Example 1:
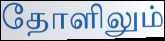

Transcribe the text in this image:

தோளிலும்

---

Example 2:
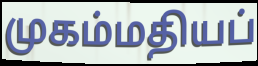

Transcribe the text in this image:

முகம்மதியப்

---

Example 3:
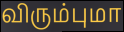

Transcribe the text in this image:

விரும்புமா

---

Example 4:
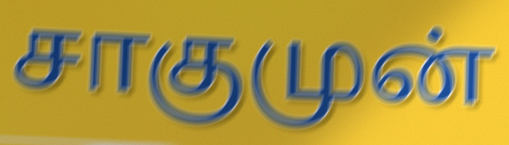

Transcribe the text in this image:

சாகுமுன்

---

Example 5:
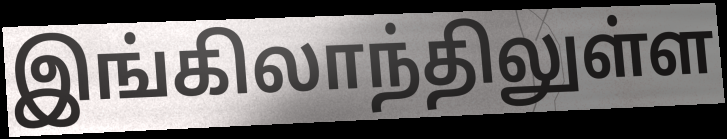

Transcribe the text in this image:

இங்கிலாந்திலுள்ள